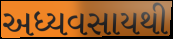
અધ્યવસાયથી